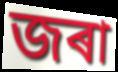
জৰা